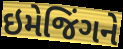
ઇમેજિંગને